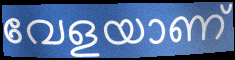
വേളയാണ്